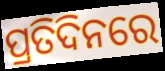
ପ୍ରତିଦିନରେ